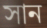
সান